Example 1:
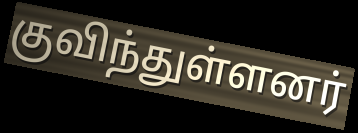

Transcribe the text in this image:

குவிந்துள்ளனர்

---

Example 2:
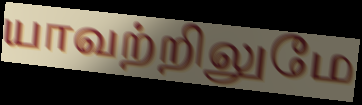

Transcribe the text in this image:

யாவற்றிலுமே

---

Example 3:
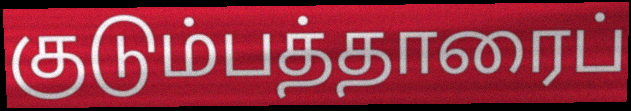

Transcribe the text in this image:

குடும்பத்தாரைப்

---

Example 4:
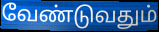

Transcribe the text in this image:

வேண்டுவதும்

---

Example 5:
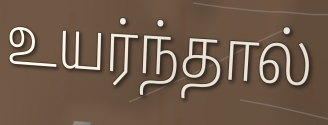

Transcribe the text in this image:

உயர்ந்தால்